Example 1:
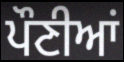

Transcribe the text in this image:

ਪੌਣੀਆਂ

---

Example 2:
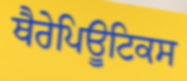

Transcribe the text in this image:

ਥੈਰੇਪਿਊਟਿਕਸ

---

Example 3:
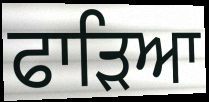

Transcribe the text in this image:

ਫਾੜਿਆ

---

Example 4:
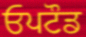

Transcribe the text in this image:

ਓਪਟੌਡ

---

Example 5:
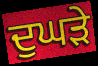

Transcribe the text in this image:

ਦੁਘੜੇ